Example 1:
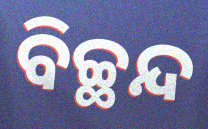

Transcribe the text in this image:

ବିଚ୍ଛନ୍ଦ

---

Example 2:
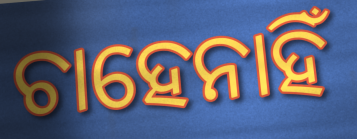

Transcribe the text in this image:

ଚାହେନାହିଁ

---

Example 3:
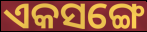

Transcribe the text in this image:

ଏକସଙ୍ଗେ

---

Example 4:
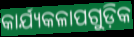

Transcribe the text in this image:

କାର୍ଯ୍ୟକଳାପଗୁଡ଼ିକ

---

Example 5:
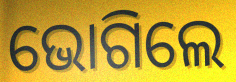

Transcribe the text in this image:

ଭୋଗିଲେ